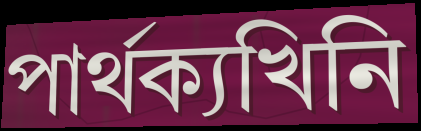
পাৰ্থক্যখিনি